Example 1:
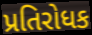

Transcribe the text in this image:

પ્રતિરોધક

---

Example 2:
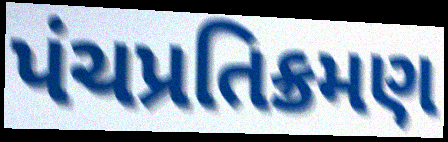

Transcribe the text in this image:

પંચપ્રતિક્રમણ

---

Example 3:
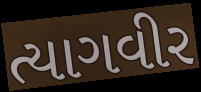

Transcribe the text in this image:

ત્યાગવીર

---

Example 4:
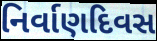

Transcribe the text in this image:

નિર્વાણદિવસ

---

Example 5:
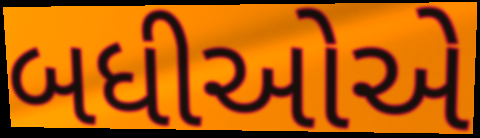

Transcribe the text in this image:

બધીઓએ